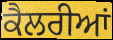
ਕੈਲਰੀਆਂ